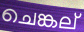
ചെങ്കല്